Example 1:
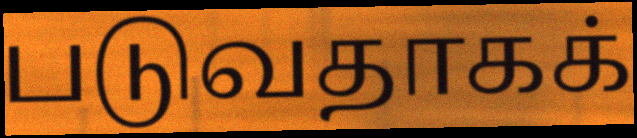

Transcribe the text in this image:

படுவதாகக்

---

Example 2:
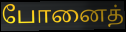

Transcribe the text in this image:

போனைத்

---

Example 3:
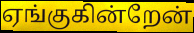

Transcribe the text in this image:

ஏங்குகின்றேன்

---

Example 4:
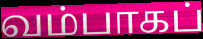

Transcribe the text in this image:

வம்பாகப்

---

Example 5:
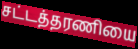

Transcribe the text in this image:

சட்டத்தரணியை